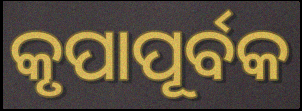
କୃପାପୂର୍ବକ